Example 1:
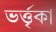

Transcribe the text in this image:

ভর্ত্তৃকা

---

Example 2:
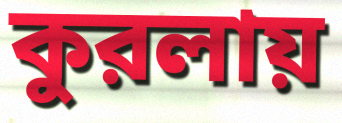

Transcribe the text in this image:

কুরলায়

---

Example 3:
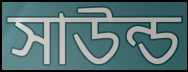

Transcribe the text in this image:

সাউন্ড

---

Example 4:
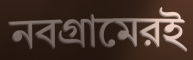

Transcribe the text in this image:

নবগ্রামেরই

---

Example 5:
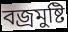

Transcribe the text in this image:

বজ্রমুষ্টি